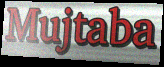
Mujtaba